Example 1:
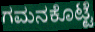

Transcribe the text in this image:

ಗಮನಕೊಟ್ಟೆ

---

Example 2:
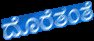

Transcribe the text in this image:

ದೊರೆತಂತೆ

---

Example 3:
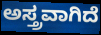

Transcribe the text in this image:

ಅಸ್ತ್ರವಾಗಿದೆ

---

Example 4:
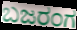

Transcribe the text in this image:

ಬಜರಂಗ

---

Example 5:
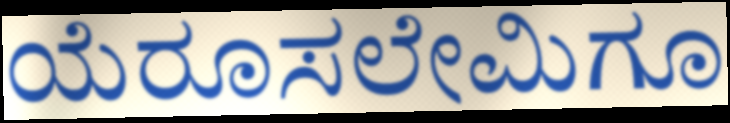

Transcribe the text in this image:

ಯೆರೂಸಲೇಮಿಗೂ